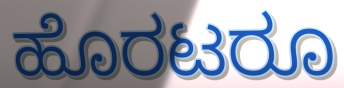
ಹೊರಟರೂ